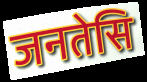
जनतेसि